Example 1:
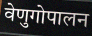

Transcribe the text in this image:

वेणुगोपालन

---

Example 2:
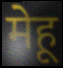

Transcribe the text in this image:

मेहू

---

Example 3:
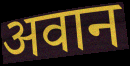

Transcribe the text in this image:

अवान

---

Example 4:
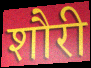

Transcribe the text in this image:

शौरी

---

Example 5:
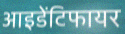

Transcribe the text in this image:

आइडेंटिफायर